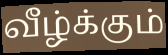
வீழ்க்கும்